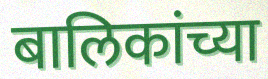
बालिकांच्या